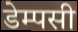
डेम्पसी